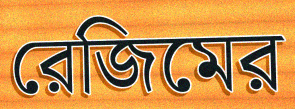
রেজিমের